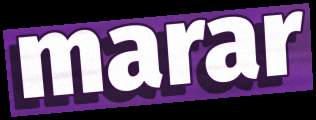
marar